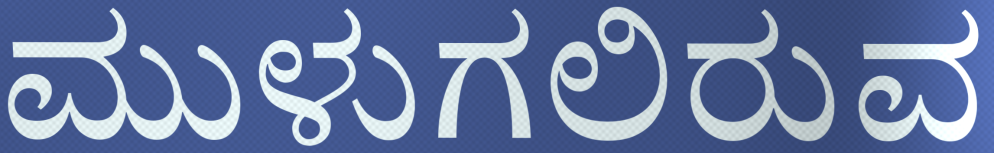
ಮುಳುಗಲಿರುವ